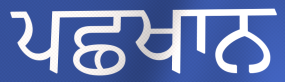
ਪਛਖਾਨ